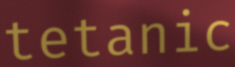
tetanic